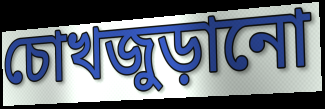
চোখজুড়ানো